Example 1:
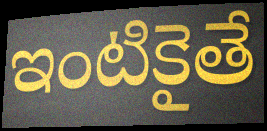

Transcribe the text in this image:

ఇంటికైతే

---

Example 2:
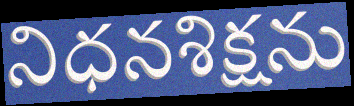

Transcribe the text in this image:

నిధనశిక్షను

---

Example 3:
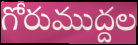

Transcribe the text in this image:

గోరుముద్దల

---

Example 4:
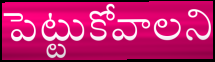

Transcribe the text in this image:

పెట్టుకోవాలని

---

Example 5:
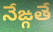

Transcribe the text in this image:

నేఙ్గతే